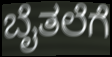
ಬೈತಲೆಗೆ